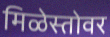
मिळेस्तोवर